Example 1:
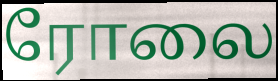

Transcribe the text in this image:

ரோலை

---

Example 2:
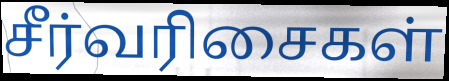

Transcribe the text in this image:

சீர்வரிசைகள்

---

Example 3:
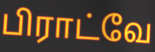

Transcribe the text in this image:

பிராட்வே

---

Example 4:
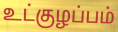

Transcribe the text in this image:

உட்குழப்பம்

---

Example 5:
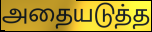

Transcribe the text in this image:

அதையடுத்த